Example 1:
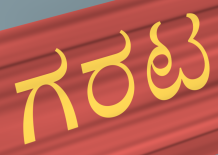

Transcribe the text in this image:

ಗರಟ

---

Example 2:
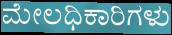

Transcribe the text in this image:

ಮೇಲಧಿಕಾರಿಗಳು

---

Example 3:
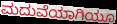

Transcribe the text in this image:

ಮದುವೆಯಾಗಿಯೂ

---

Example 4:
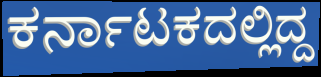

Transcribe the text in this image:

ಕರ್ನಾಟಕದಲ್ಲಿದ್ದ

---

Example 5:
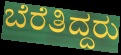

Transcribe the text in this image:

ಬೆರೆತಿದ್ದರು